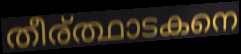
തീര്ത്ഥാടകനെ